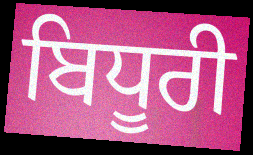
ਬਿਧੂਰੀ